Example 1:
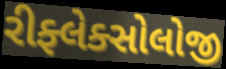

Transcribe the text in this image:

રીફ્લેક્સોલોજી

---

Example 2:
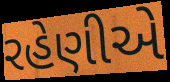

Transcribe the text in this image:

રહેણીએ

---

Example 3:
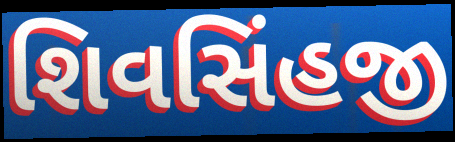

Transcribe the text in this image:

શિવસિંહજી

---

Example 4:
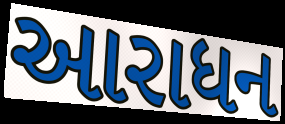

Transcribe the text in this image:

આરાધન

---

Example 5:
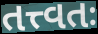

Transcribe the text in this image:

તત્ત્વતઃ